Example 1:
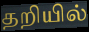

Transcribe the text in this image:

தறியில்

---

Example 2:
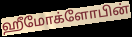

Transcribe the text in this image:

ஹீமோக்ளோபின்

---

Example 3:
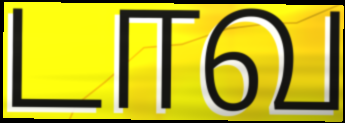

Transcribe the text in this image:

டாவ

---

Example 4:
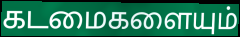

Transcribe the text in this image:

கடமைகளையும்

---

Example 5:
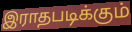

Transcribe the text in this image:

இராதபடிக்கும்